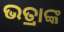
ଭତ୍ରାଙ୍କ